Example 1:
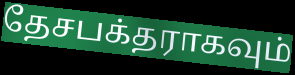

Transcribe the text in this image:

தேசபக்தராகவும்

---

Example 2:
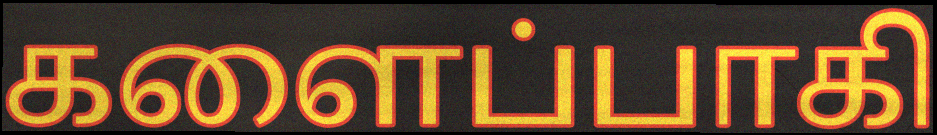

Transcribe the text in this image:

களைப்பாகி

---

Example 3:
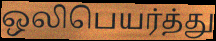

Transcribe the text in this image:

ஒலிபெயர்த்து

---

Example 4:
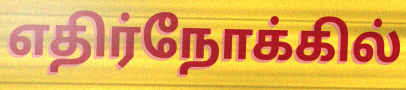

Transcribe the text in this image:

எதிர்நோக்கில்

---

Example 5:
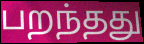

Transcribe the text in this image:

பறந்தது